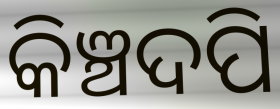
କିଞ୍ଚଦପି